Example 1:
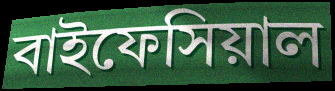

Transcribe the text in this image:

বাইফেসিয়াল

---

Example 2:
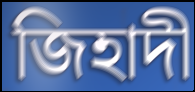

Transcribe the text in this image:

জিহাদী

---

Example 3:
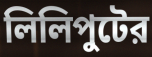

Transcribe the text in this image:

লিলিপুটের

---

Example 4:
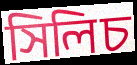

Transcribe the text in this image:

সিলিচ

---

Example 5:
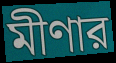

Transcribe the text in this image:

মীণার